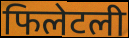
फिलेटली